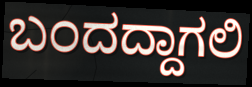
ಬಂದದ್ದಾಗಲಿ